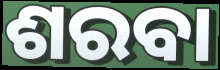
ଶରବା